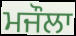
ਮਜੌਲਾ